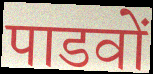
पाडवों